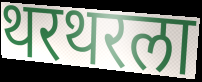
थरथरला